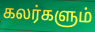
கலர்களும்